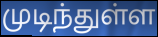
முடிந்துள்ள